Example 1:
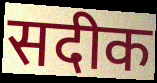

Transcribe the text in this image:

सदीक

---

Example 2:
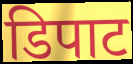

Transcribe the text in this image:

डिपाट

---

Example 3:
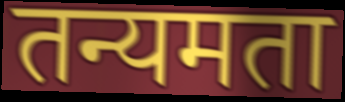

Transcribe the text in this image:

तन्यमता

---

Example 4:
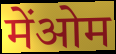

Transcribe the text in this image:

मेंओम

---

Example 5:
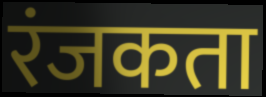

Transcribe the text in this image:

रंजकता